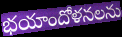
భయాందోళనలను